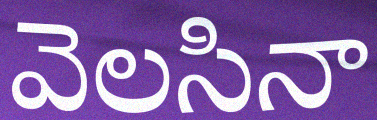
వెలసినా